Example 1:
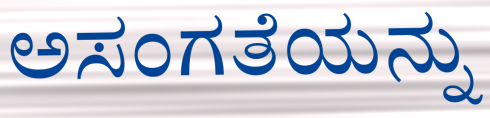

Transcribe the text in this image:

ಅಸಂಗತೆಯನ್ನು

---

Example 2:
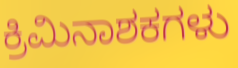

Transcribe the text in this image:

ಕ್ರಿಮಿನಾಶಕಗಳು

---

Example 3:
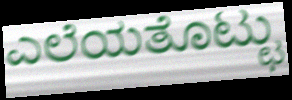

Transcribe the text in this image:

ಎಲೆಯತೊಟ್ಟು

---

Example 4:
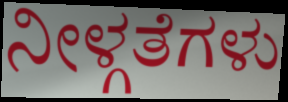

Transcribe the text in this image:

ನೀಳ್ಗತೆಗಳು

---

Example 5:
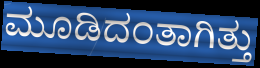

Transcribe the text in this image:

ಮೂಡಿದಂತಾಗಿತ್ತು